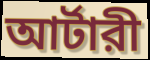
আর্টারী